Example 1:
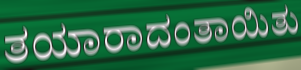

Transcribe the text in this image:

ತಯಾರಾದಂತಾಯಿತು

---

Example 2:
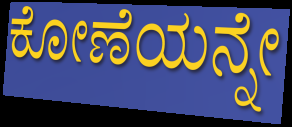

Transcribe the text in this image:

ಕೋಣೆಯನ್ನೇ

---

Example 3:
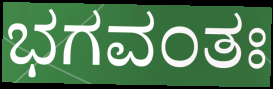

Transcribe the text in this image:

ಭಗವಂತಃ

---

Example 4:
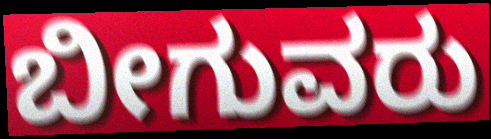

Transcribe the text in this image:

ಬೀಗುವರು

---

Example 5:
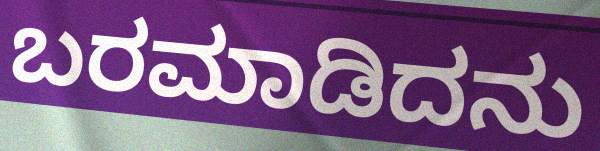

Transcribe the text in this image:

ಬರಮಾಡಿದನು